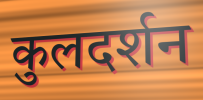
कुलदर्शन